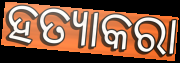
ହତ୍ୟାକରା